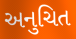
અનુચિત